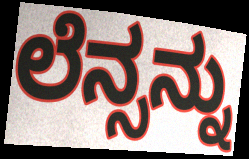
ಲೆನ್ಸನ್ನು